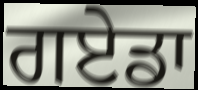
ਗਏਡਾ